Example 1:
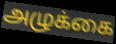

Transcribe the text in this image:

அழுக்கை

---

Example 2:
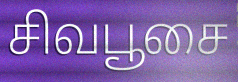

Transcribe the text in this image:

சிவபூசை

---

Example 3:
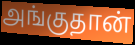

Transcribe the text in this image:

அங்குதான்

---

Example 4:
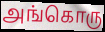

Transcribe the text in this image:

அங்கொரு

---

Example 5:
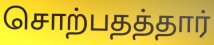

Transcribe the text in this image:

சொற்பதத்தார்